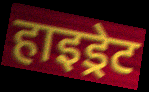
हाइड्रेट